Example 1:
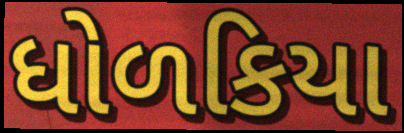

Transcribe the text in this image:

ધોળકિયા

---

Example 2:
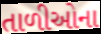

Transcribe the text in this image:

તાળીઓના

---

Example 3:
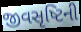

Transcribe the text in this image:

જીવસૃષ્ટિની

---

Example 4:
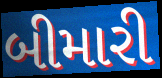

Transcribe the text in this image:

બીમારી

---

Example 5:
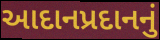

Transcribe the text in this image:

આદાનપ્રદાનનું